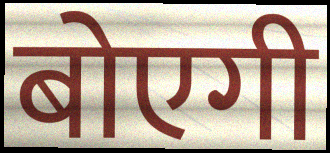
बोएगी